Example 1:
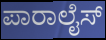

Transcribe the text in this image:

ಪಾರಾಲೈಸ್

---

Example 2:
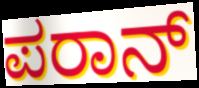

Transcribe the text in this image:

ಪರಾನ್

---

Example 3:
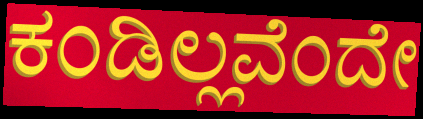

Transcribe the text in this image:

ಕಂಡಿಲ್ಲವೆಂದೇ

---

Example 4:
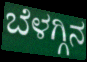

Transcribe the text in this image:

ಬೆಳಗ್ಗಿನ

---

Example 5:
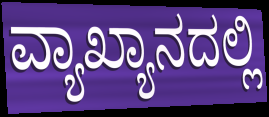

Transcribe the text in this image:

ವ್ಯಾಖ್ಯಾನದಲ್ಲಿ